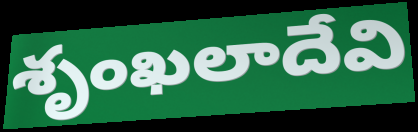
శృంఖలాదేవి